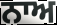
ਨਾਅ